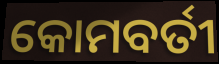
କୋମବର୍ତୀ